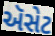
ઍસેટ